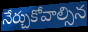
నేర్చుకోవాల్సిన